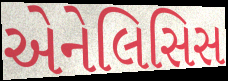
એનેલિસિસ